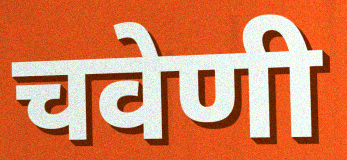
चवेणी